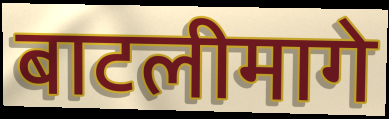
बाटलीमागे